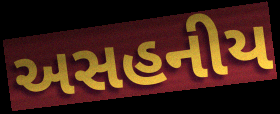
અસહનીય